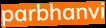
parbhanvi